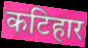
कटिहार